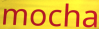
mocha